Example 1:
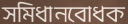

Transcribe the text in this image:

সমিধানবোধক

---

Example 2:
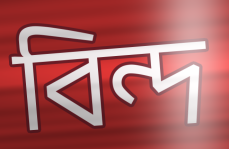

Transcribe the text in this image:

বিন্দ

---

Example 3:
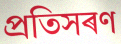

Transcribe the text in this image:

প্ৰতিসৰণ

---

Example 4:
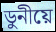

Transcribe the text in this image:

ডুনীয়ে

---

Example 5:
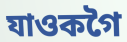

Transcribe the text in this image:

যাওকগৈ